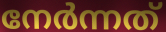
നേർന്നത്